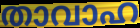
താവാഹ